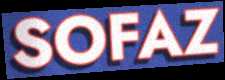
SOFAZ